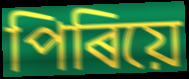
পিৰিয়ে